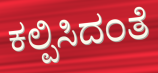
ಕಲ್ಪಿಸಿದಂತೆ